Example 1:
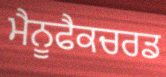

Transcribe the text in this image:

ਮੈਨੂਫੈਕਚਰਡ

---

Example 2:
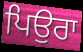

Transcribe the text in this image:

ਪਿਉਰਾ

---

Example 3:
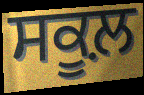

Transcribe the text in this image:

ਸਕੂਲ਼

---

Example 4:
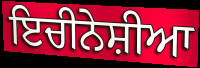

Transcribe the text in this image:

ਇਚੀਨੇਸ਼ੀਆ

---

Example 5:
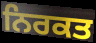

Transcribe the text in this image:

ਨਿਰਕਤ